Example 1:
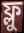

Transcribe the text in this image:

ফ্লু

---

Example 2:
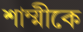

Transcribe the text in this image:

শাম্মীকে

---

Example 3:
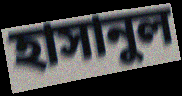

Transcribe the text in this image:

হাসানুল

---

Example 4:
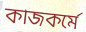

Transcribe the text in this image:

কাজকর্মে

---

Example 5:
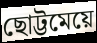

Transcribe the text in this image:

ছোট্টমেয়ে